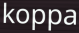
koppa